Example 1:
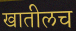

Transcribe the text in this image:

खातीलच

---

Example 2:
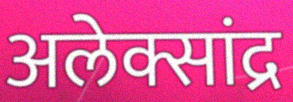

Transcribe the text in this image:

अलेक्सांद्र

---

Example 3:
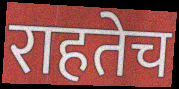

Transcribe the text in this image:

राहतेच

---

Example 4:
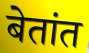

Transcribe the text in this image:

बेतांत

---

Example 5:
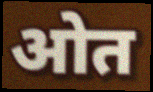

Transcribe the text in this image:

ओत